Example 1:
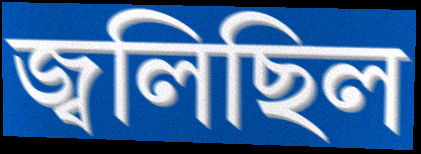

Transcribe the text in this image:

জ্বলিছিল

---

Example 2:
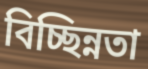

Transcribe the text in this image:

বিচ্ছিন্নতা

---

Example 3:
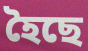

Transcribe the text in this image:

হৈছে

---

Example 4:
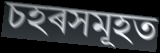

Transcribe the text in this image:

চহৰসমূহত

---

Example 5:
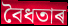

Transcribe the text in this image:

বৈধতাৰ